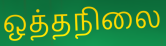
ஒத்தநிலை